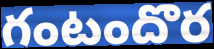
గంటందొర